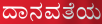
ದಾನವತೆಯ